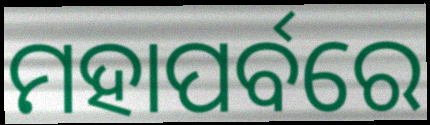
ମହାପର୍ବରେ